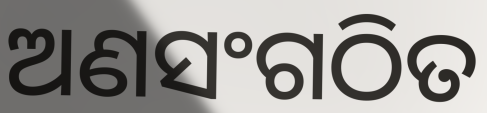
ଅଣସଂଗଠିତ